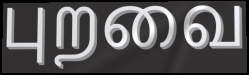
புறவை